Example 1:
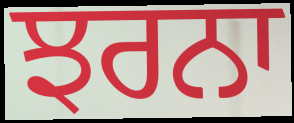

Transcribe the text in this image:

ਝਰਨਾ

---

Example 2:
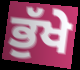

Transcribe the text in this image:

ਭੁੱਖੇ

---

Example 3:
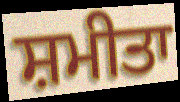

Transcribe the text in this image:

ਸ਼ਮੀਤਾ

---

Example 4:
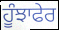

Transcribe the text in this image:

ਹੂੰਝਾਫੇਰ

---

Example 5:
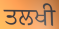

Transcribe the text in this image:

ਤਲਖੀ